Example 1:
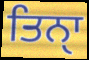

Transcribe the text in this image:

ਤਿਨੑਾ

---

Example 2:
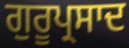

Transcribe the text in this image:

ਗੁਰੂਪ੍ਰਸਾਦ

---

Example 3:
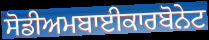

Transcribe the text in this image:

ਸੋਡੀਅਮਬਾਈਕਾਰਬੋਨੇਟ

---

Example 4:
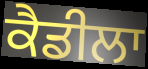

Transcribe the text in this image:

ਕੈਡੀਲਾ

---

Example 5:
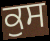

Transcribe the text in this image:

ਕੁਸ